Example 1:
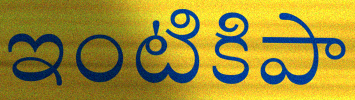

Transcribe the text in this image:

ఇంటికిపా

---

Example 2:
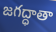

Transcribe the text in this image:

జగద్ధాతా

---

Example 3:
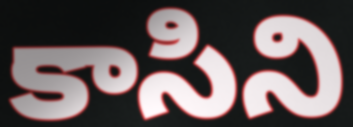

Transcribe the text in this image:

కాసిని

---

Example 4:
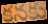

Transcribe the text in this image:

కనకు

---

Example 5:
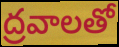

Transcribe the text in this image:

ద్రవాలతో